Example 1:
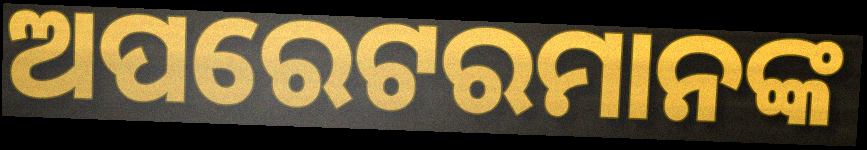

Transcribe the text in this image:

ଅପରେଟରମାନଙ୍କ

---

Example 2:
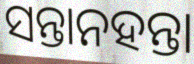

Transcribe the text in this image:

ସନ୍ତାନହନ୍ତା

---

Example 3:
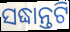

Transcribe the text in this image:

ସଦ୍ଧାନ୍ତଟି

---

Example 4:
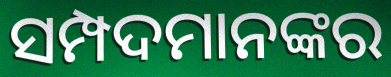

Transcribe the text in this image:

ସମ୍ପଦମାନଙ୍କର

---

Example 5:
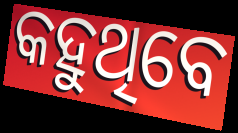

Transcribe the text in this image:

କହୁଥିବେ